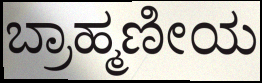
ಬ್ರಾಹ್ಮಣೀಯ